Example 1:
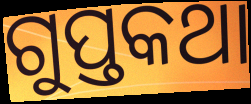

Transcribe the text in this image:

ଗୁପ୍ତକଥା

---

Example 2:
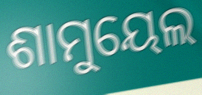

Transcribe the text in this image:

ଶାମୁୟେଲ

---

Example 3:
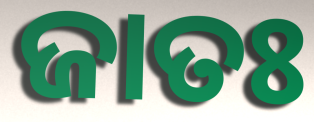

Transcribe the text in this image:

ଜାତଃ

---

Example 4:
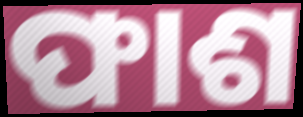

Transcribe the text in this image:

ଫାଶ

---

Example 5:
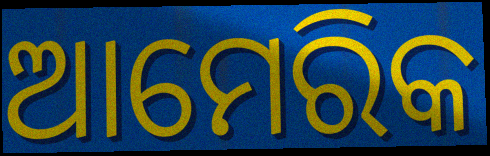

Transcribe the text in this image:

ଆମେରିକ